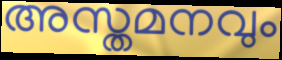
അസ്തമനവും